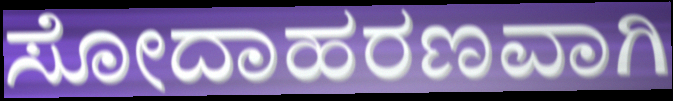
ಸೋದಾಹರಣವಾಗಿ